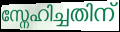
സ്നേഹിച്ചതിന്